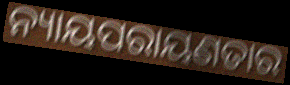
ନ୍ୟାୟପରାୟଣତାର